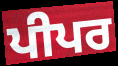
ਪੀਪਰ